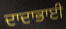
ਦਾਦਾਭਾਈ